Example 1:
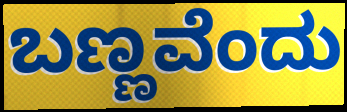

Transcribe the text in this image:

ಬಣ್ಣವೆಂದು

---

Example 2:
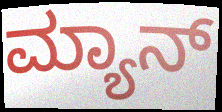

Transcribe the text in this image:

ಮ್ಯಾನ್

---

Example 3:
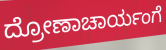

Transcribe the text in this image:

ದ್ರೋಣಾಚಾರ್ಯಂಗೆ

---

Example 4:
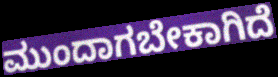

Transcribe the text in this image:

ಮುಂದಾಗಬೇಕಾಗಿದೆ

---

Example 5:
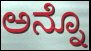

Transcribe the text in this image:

ಅನ್ನೊ